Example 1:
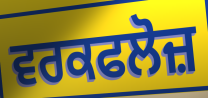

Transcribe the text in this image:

ਵਰਕਫਲੋਜ਼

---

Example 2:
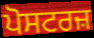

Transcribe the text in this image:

ਪੋਸਟਰਜ਼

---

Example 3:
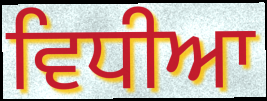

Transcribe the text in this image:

ਵਿਧੀਆ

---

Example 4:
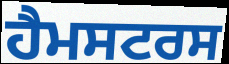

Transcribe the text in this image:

ਹੈਮਸਟਰਸ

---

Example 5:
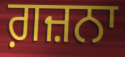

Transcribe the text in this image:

ਗ਼ਜ਼ਨਾ